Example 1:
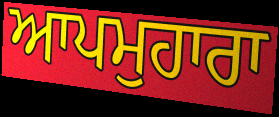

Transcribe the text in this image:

ਆਪਮੁਹਾਰਾ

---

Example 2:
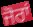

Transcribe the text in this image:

ਜੋਰਾਂ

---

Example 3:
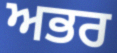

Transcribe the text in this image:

ਅਭਰ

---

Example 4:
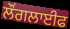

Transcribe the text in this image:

ਲੌਂਗਲਾਈਫ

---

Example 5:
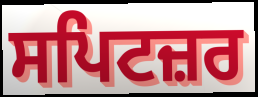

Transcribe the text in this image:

ਸਪਿਟਜ਼ਰ